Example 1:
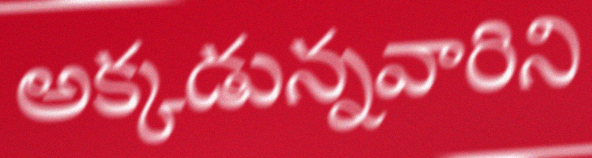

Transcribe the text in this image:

అక్కడున్నవారిని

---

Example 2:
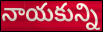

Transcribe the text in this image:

నాయకున్ని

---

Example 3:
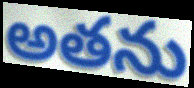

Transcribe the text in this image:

అతను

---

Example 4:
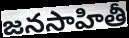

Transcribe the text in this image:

జనసాహితీ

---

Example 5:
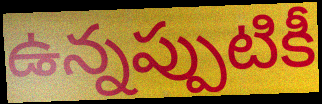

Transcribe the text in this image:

ఉన్నప్పుటికీ